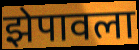
झेपावला